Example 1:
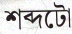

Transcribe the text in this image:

শব্দটো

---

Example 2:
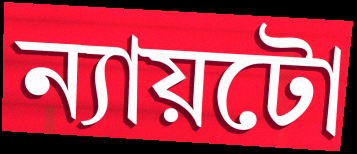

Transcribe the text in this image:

ন্যায়টো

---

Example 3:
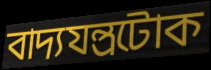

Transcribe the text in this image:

বাদ্যযন্ত্ৰটোক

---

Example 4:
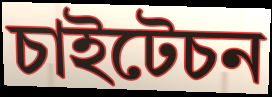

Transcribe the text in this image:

চাইটেচন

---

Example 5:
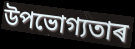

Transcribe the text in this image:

উপভোগ্যতাৰ